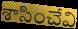
శాసించేవి